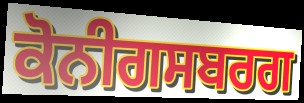
ਕੋਨੀਗਸਬਰਗ